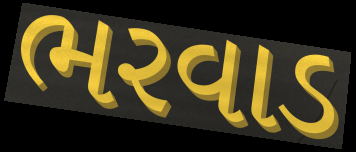
ભરવાડ